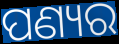
ପଣ୍ୟର